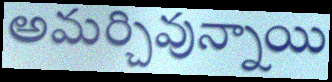
అమర్చివున్నాయి